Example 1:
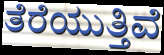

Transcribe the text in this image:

ತೆರೆಯುತ್ತಿವೆ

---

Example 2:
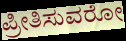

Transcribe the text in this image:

ಪ್ರೀತಿಸುವರೋ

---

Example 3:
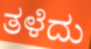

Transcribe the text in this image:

ತಳೆದು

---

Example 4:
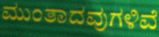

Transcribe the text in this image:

ಮುಂತಾದವುಗಳಿವೆ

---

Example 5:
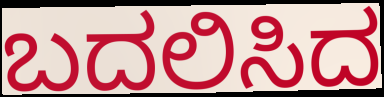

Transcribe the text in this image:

ಬದಲಿಸಿದ